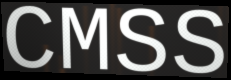
CMSS